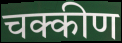
चक्कीण